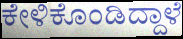
ಕೇಳಿಕೊಂಡಿದ್ದಾಳೆ